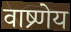
वाष्र्णेय